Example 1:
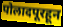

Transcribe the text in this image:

पोलादपूरहून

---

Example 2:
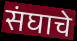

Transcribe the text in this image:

संघाचे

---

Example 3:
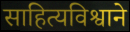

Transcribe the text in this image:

साहित्यविश्वाने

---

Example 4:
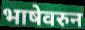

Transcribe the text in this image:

भाषेवरुन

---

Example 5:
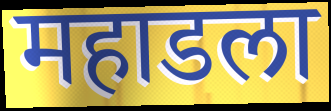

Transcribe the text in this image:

महाडला